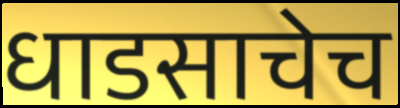
धाडसाचेच